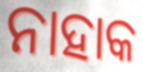
ନାହାକ